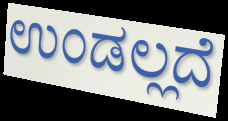
ಉಂಡಲ್ಲದೆ